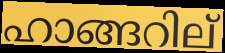
ഹാങ്ങറില്